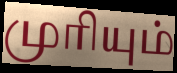
முரியும்